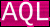
AQL